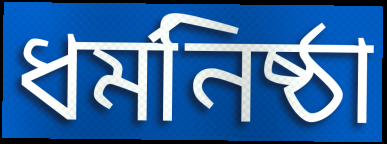
ধর্মনিষ্ঠা